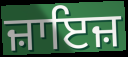
ਜ਼ਾਇਜ਼